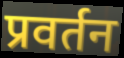
प्रवर्तन